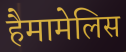
हैमामेलिस